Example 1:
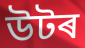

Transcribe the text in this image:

উটৰ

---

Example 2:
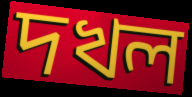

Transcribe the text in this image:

দখল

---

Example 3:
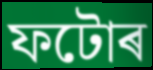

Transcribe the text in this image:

ফটোৰ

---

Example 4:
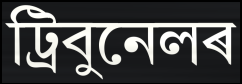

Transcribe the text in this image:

ট্ৰিবুনেলৰ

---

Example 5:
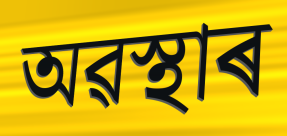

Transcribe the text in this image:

অৱস্থাৰ